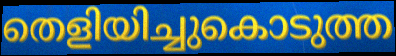
തെളിയിച്ചുകൊടുത്ത